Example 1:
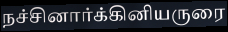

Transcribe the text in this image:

நச்சினார்க்கினியருரை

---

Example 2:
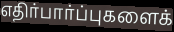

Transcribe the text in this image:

எதிர்பார்ப்புகளைக்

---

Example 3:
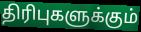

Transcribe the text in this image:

திரிபுகளுக்கும்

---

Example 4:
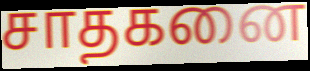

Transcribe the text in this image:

சாதகனை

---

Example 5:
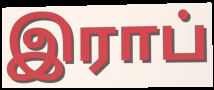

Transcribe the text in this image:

இராப்